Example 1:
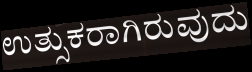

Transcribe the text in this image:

ಉತ್ಸುಕರಾಗಿರುವುದು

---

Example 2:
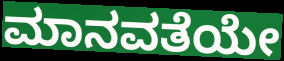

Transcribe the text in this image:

ಮಾನವತೆಯೇ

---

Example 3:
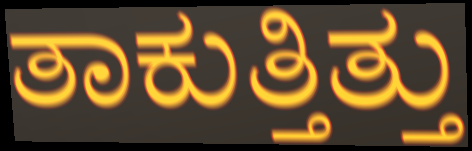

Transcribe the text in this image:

ತಾಕುತ್ತಿತ್ತು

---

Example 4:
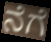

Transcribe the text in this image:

ನೆಗೆ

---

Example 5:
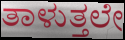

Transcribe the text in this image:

ತಾಳುತ್ತಲೇ